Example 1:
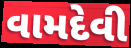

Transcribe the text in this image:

વામદેવી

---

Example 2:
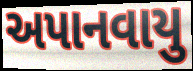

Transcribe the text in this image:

અપાનવાયુ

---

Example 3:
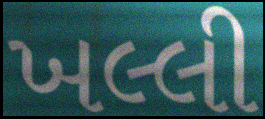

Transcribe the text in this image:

ખલ્લી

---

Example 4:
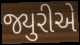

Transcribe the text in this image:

જ્યુરીએ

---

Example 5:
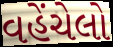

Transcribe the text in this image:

વહેંચેલો